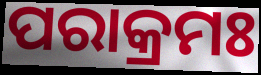
ପରାକ୍ରମଃ